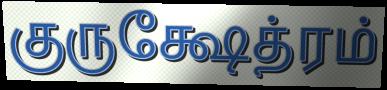
குருக்ஷேத்ரம்